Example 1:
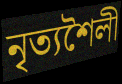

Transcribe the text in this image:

নৃত্যশৈলী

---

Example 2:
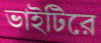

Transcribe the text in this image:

ভাইটিরে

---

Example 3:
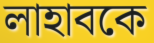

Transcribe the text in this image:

লাহাবকে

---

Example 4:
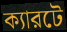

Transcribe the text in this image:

ক্যারটে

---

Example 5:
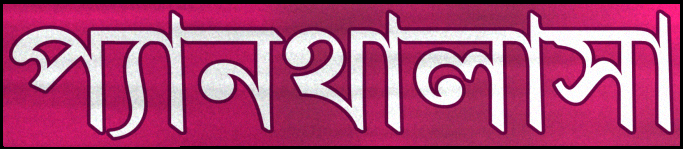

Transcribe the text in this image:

প্যানথালাসা